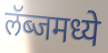
लॅब्जमध्ये